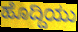
ಹೊದ್ದಿಯು